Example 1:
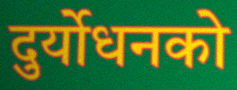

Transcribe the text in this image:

दुर्योधनको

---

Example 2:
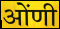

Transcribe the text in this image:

ओंणी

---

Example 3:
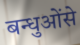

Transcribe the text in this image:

बन्धुओंसे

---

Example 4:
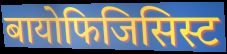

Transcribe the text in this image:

बायोफिजिसिस्ट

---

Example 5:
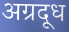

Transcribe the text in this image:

अग्रदूध